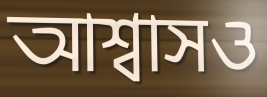
আশ্বাসও